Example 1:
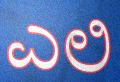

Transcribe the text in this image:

ಎಲಿ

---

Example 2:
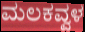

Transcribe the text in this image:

ಮಲಕವ್ವಳ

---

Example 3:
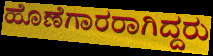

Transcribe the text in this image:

ಹೊಣೆಗಾರರಾಗಿದ್ದರು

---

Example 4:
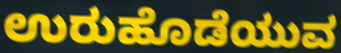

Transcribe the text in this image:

ಉರುಹೊಡೆಯುವ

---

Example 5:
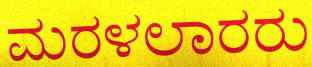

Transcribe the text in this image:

ಮರಳಲಾರರು